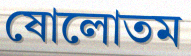
ষোলোতম